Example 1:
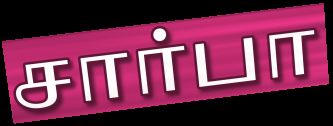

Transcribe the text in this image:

சார்பா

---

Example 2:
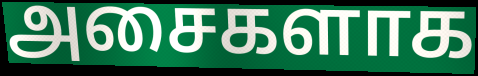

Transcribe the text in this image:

அசைகளாக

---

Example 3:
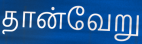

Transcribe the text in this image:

தான்வேறு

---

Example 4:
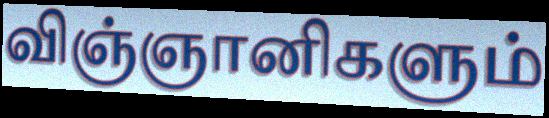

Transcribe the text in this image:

விஞ்ஞானிகளும்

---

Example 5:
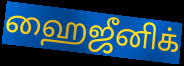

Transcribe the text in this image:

ஹைஜீனிக்